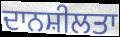
ਦਾਨਸ਼ੀਲਤਾ